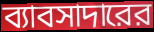
ব্যাবসাদারের